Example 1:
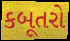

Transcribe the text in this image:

કબૂતરો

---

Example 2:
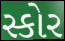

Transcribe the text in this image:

સ્કોર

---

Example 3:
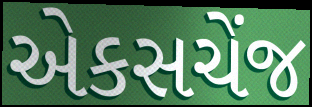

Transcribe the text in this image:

એકસચેંજ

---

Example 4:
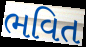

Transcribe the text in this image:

ભવિત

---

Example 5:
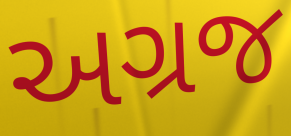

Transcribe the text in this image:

અગ્રજ